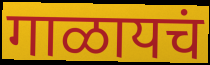
गाळायचं